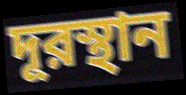
দূরস্থান